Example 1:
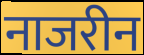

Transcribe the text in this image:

नाजरीन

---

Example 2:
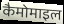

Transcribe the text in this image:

कैमोमाइल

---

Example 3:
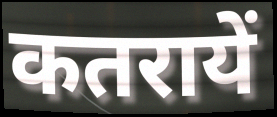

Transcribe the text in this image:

कतरायें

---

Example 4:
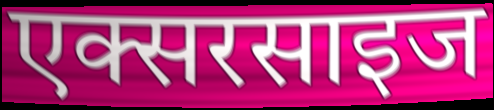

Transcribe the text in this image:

एक्‍सरसाइज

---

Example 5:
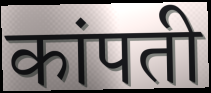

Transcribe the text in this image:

कांपती